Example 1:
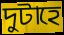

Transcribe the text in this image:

দুটাহে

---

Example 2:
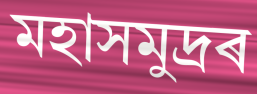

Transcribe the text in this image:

মহাসমুদ্ৰৰ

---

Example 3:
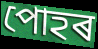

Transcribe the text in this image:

পোহৰ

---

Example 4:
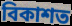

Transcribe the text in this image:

বিকাশত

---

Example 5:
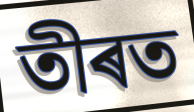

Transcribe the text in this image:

তীৰত